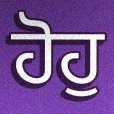
ਹੋਹੁ